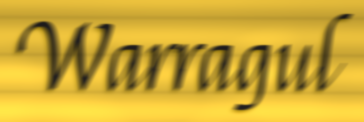
Warragul